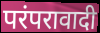
परंपरावादी